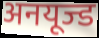
अनयूज्ड